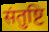
संतुष्टि